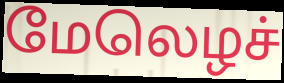
மேலெழச்